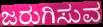
ಜರುಗಿಸುವ